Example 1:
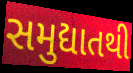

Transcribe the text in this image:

સમુદ્યાતથી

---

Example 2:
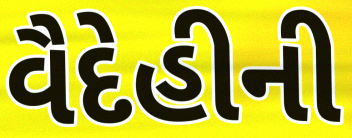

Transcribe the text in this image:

વૈદેહીની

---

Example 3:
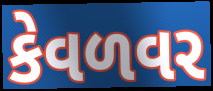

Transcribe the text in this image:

કેવળવર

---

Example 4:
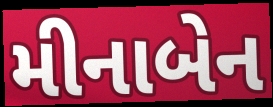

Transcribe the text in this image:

મીનાબેન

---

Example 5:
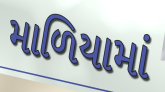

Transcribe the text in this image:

માળિયામાં